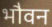
भौवन